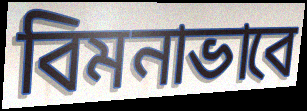
বিমনাভাবে